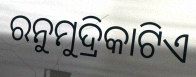
ରନୁମୁଦ୍ରିକାଟିଏ